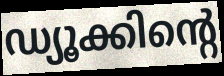
ഡ്യൂക്കിന്റെ